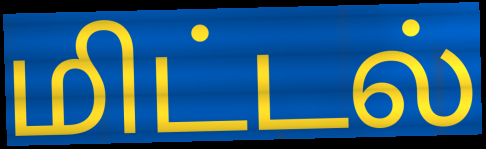
மிட்டல்